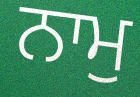
ਨਾਮੁ